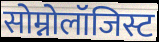
सोम्नोलॉजिस्ट